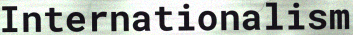
Internationalism